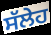
ਸੱਲੇਹ